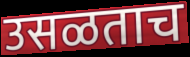
उसळताच